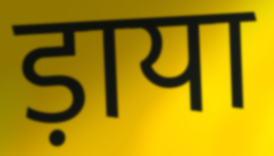
ड़ाया